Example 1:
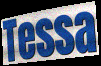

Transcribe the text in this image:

Tessa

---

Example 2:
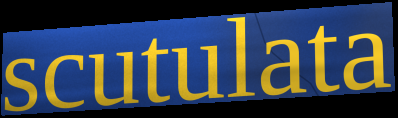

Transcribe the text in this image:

scutulata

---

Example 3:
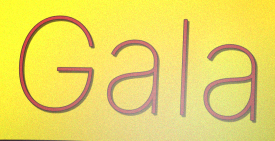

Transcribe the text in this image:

Gala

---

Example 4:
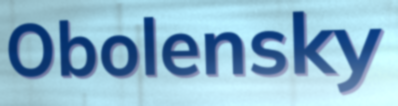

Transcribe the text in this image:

Obolensky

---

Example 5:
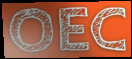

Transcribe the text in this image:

OEC